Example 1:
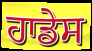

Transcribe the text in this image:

ਹਾਡੇਸ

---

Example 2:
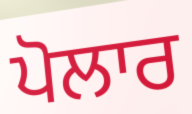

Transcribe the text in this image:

ਪੋਲਾਰ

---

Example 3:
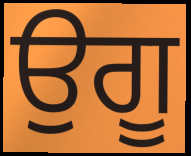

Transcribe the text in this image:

ਉਗੂ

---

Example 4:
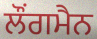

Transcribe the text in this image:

ਲੌਂਗਮੈਨ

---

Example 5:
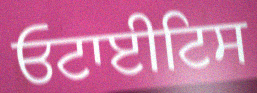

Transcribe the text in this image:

ਓਟਾਈਟਿਸ